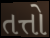
તત્તો